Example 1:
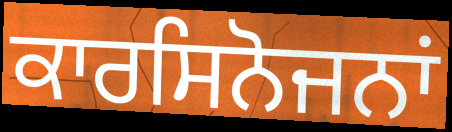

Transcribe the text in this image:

ਕਾਰਸਿਨੋਜਨਾਂ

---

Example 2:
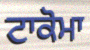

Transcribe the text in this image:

ਟਾਕੋਮਾ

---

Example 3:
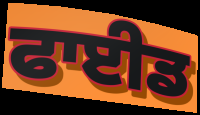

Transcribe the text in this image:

ਫਾਈਡ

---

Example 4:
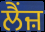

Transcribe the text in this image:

ਲੈਂਜ਼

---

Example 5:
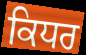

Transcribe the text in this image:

ਕਿਧਰ